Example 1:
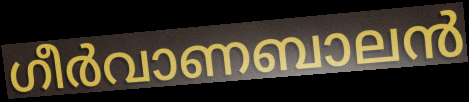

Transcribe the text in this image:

ഗീർവാണബാലൻ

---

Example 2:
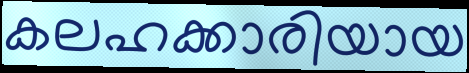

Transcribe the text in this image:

കലഹക്കാരിയായ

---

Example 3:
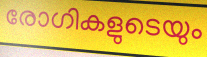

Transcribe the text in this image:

രോഗികളുടെയും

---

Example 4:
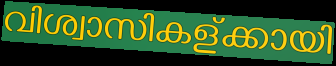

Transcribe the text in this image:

വിശ്വാസികള്ക്കായി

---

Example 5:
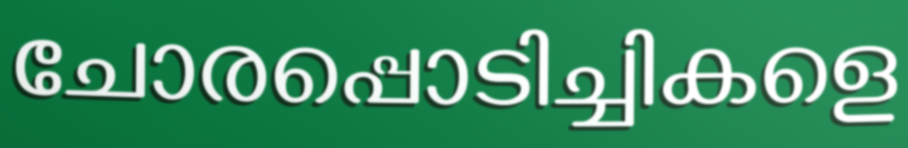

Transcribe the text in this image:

ചോരപ്പൊടിച്ചികളെ